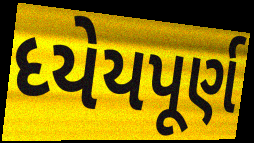
ધ્યેયપૂર્ણ